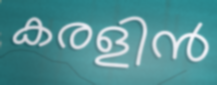
കരളിൻ